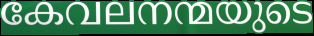
കേവലനന്മയുടെ